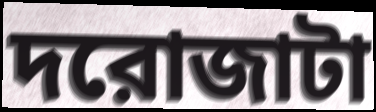
দরোজাটা